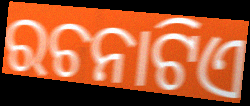
ରଚନାଟିଏ